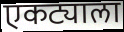
एकट्याला